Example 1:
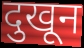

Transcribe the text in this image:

दुखून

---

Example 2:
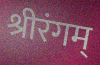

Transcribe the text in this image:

श्रीरंगम्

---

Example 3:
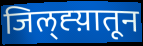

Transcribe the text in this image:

जिल्ह्य़ातून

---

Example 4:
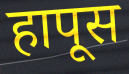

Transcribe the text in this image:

हापूस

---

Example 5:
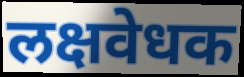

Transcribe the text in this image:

लक्षवेधक